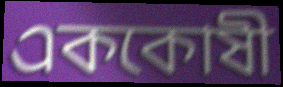
এককোষী